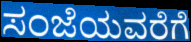
ಸಂಜೆಯವರೆಗೆ